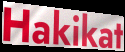
Hakikat